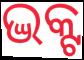
ଦ୍ଭକ୍ଟ